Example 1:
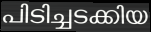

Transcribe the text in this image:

പിടിച്ചടക്കിയ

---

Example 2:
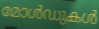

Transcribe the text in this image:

മോൾഡുകൾ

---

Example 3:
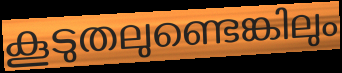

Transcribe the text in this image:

കൂടുതലുണ്ടെങ്കിലും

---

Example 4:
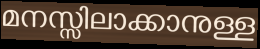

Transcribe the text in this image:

മനസ്സിലാക്കാനുള്ള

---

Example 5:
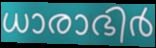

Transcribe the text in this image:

ധാരാഭിർ